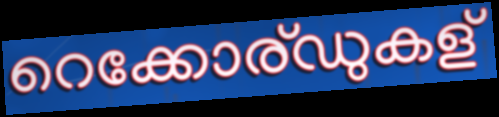
റെക്കോര്ഡുകള്